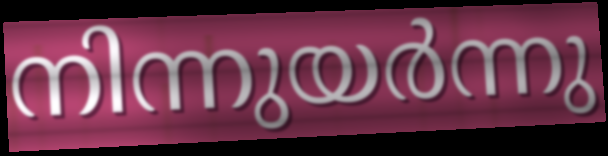
നിന്നുയർന്നു